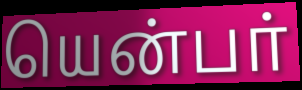
யென்பர்